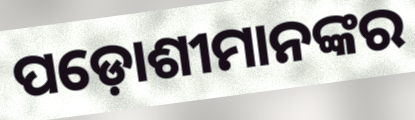
ପଡ଼ୋଶୀମାନଙ୍କର